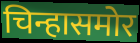
चिन्हासमोर